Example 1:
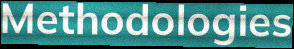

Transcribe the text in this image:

Methodologies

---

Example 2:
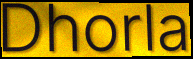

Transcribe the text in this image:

Dhorla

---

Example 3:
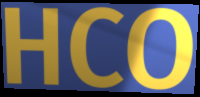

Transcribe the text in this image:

HCO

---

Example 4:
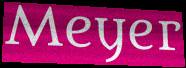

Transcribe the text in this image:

Meyer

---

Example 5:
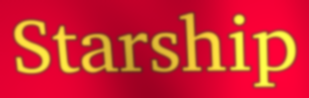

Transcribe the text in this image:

Starship